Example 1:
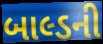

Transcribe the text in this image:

બાલ્ડની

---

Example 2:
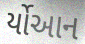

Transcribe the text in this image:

ર્યોઆન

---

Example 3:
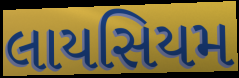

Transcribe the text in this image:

લાયસિયમ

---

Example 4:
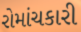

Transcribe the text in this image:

રોમાંચકારી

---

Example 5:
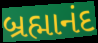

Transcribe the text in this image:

બ્રહ્માનંદ